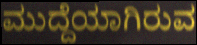
ಮುದ್ದೆಯಾಗಿರುವ